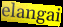
elangai